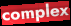
complex